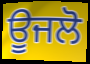
ਊਜਲੋ